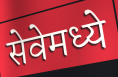
सेवेमध्ये